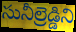
సునీల్రెడ్డిని